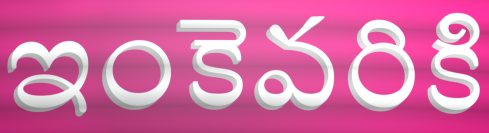
ఇంకెవరికి